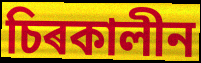
চিৰকালীন